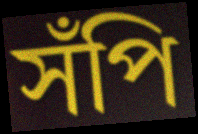
সঁপি